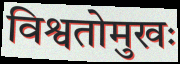
विश्वतोमुखः